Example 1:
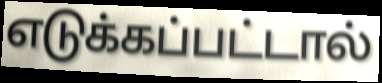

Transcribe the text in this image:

எடுக்கப்பட்டால்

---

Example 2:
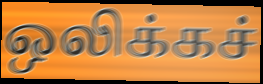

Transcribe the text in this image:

ஒலிக்கச்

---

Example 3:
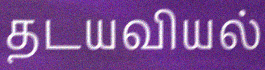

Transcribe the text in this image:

தடயவியல்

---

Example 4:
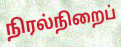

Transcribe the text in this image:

நிரல்நிறைப்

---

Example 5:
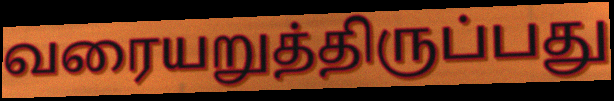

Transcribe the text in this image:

வரையறுத்திருப்பது